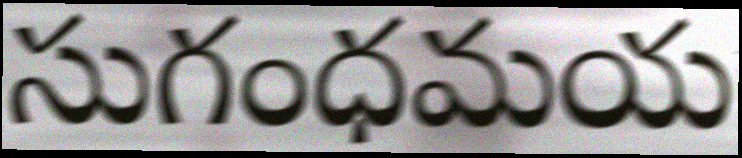
సుగంధమయ